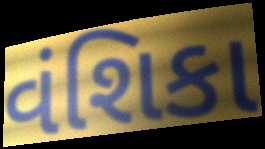
વંશિકા